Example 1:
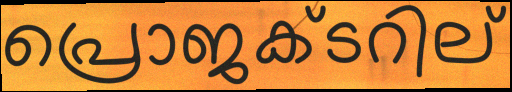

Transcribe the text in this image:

പ്രൊജക്ടറില്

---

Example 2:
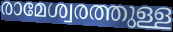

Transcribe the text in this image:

രാമേശ്വരത്തുള്ള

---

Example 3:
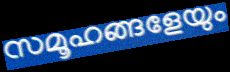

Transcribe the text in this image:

സമൂഹങ്ങളേയും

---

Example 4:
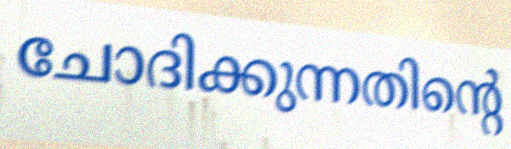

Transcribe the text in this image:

ചോദിക്കുന്നതിന്റെ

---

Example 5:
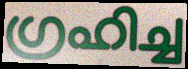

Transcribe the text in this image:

ഗ്രഹിച്ച